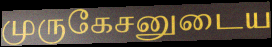
முருகேசனுடைய